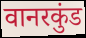
वानरकुंड